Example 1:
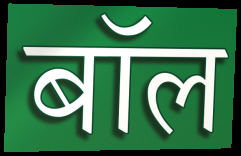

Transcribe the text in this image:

बॉल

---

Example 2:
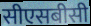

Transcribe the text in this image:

सीएसबीसी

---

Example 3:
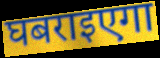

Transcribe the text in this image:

घबराइएगा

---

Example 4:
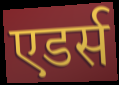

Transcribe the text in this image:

एडर्स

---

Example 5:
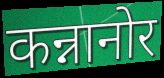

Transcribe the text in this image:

कन्नानोर